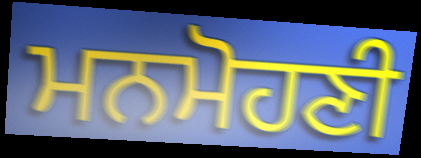
ਮਨਮੋਹਣੀ